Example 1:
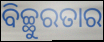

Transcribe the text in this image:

ବିଚ୍ଛୁରତାର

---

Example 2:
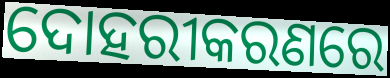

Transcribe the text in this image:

ଦୋହରୀକରଣରେ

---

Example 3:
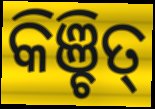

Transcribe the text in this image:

କିଞ୍ଚିତ୍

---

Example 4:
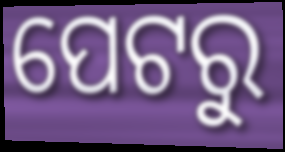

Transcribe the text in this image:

ପେଟରୁ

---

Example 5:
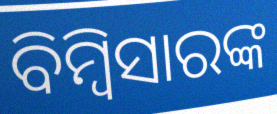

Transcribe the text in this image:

ବିମ୍ବିସାରଙ୍କ